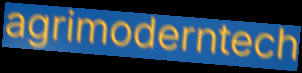
agrimoderntech